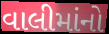
વાલીમાંનો